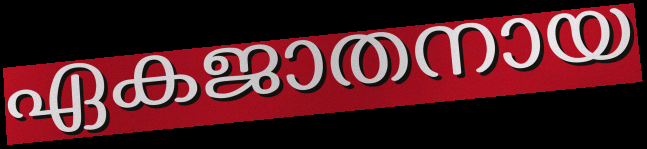
ഏകജാതനായ